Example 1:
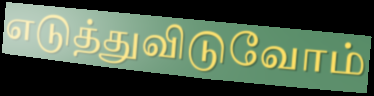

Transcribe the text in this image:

எடுத்துவிடுவோம்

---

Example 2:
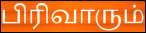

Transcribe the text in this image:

பிரிவாரும்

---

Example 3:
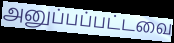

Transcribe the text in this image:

அனுப்பப்பட்டவை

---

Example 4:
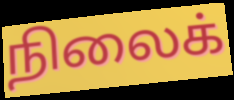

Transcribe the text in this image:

நிலைக்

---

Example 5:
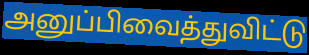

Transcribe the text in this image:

அனுப்பிவைத்துவிட்டு